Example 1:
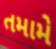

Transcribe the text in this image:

તમામે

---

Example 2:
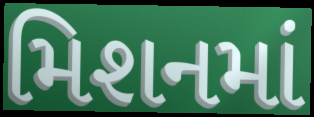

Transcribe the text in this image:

મિશનમાં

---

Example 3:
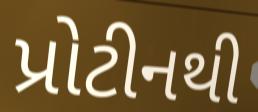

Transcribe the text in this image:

પ્રોટીનથી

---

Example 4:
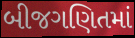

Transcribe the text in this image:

બીજગણિતમાં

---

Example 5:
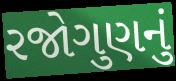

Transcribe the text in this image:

રજોગુણનું